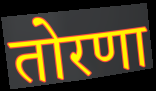
तोरणा